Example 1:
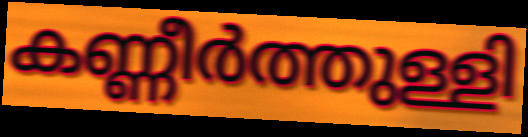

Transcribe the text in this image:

കണ്ണീർത്തുള്ളി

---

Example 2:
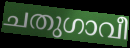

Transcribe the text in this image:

ചതുഗാവീ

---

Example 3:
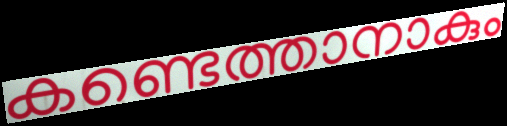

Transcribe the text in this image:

കണ്ടെത്താനാകും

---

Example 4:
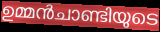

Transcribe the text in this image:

ഉമ്മൻചാണ്ടിയുടെ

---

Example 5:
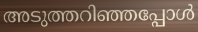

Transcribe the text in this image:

അടുത്തറിഞ്ഞപ്പോൾ